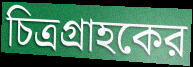
চিত্রগ্রাহকের